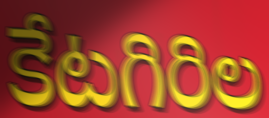
కేటగిరిల